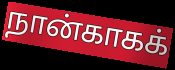
நான்காகக்